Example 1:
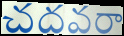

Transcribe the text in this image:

చదవరా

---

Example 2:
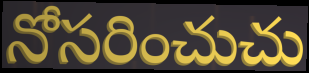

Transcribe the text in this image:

నోసరించుచు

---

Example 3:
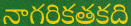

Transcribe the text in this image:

నాగరికతకది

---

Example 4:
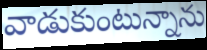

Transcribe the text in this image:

వాడుకుంటున్నాను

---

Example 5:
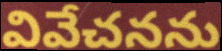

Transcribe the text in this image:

వివేచనను